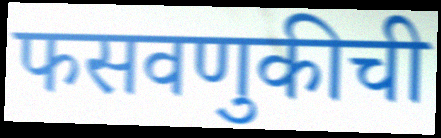
फसवणुकीची